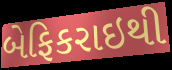
બેફિકરાઇથી